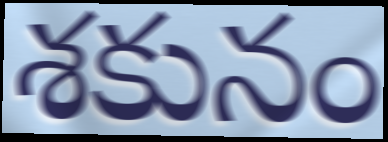
శకునం